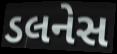
ડલનેસ